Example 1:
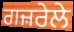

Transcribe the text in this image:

ਗਜ਼ਰੇਲੇ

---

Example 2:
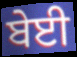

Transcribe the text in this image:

ਬੇਈ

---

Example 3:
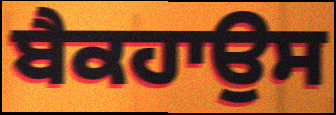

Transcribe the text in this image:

ਬੈਕਹਾਉਸ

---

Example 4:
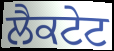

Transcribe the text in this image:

ਲੈਕਟੇਟ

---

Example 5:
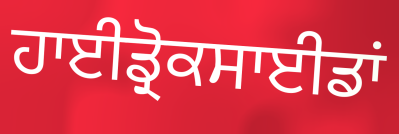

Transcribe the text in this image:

ਹਾਈਡ੍ਰੋਕਸਾਈਡਾਂ